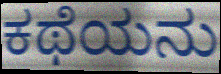
ಕಥೆಯನು